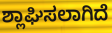
ಶ್ಲಾಘಿಸಲಾಗಿದೆ